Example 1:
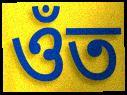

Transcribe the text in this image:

ওঁত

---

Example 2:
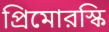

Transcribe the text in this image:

প্রিমোরস্কি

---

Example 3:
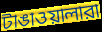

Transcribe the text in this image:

টাঙাওয়ালারা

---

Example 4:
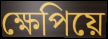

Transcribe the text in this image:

ক্ষেপিয়ে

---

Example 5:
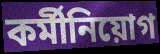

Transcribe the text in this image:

কর্মীনিয়োগ